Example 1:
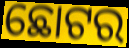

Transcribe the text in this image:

ଛୋଟର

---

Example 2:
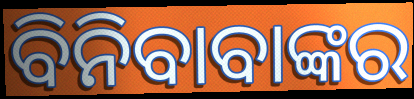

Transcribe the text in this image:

ବିନିବାବାଙ୍କର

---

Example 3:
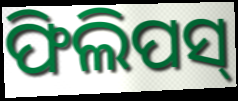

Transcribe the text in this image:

ଫିଲିପସ୍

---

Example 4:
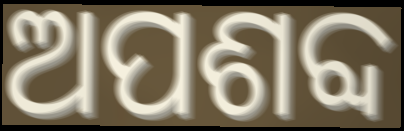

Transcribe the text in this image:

ଅପଶବ୍ଦ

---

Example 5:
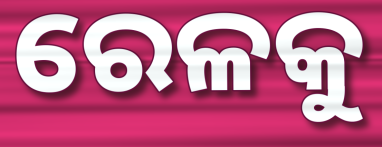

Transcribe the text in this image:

ରେଳକୁ